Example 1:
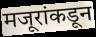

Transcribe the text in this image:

मजूरांकडून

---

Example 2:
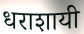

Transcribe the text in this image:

धराशायी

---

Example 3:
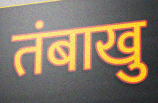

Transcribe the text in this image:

तंबाखु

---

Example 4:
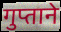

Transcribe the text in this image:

गुप्ताने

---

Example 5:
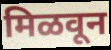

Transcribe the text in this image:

मिळवून